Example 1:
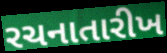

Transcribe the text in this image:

રચનાતારીખ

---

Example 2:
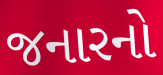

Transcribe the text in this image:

જનારનો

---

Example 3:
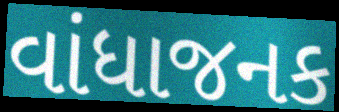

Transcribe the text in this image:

વાંધાજનક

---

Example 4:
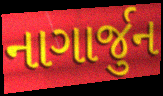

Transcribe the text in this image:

નાગાર્જુન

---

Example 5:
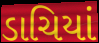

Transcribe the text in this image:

ડાચિયાં